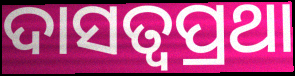
ଦାସତ୍ୱପ୍ରଥା